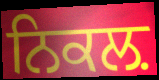
ਨਿਕਲ਼